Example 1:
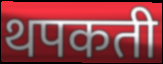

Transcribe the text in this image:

थपकती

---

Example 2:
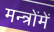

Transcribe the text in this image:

मन्त्रोंमें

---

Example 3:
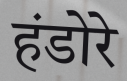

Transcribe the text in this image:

हंडोरे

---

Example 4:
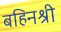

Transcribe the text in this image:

बहिनश्री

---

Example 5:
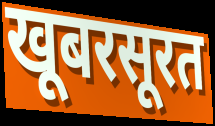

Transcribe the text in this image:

खूबरसूरत